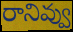
రానివ్వు